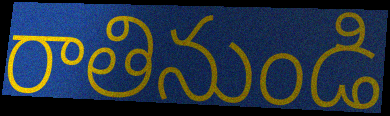
రాతినుండి